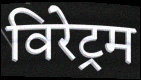
विरेट्रम